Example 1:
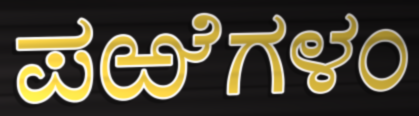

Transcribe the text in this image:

ಪಱೆಗಳಂ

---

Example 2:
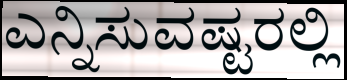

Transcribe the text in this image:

ಎನ್ನಿಸುವಷ್ಟರಲ್ಲಿ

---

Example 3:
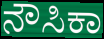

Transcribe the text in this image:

ನೌಸಿಕಾ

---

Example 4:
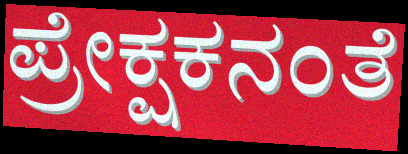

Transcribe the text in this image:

ಪ್ರೇಕ್ಷಕನಂತೆ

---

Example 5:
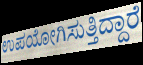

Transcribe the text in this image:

ಉಪಯೋಗಿಸುತ್ತಿದ್ದಾರೆ